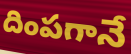
దింపగానే